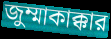
জুম্মাকাক্কার